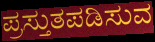
ಪ್ರಸ್ತುತಪಡಿಸುವ